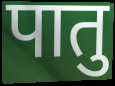
पातु